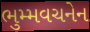
ભુમ્મવચનેન